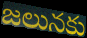
జలునకు